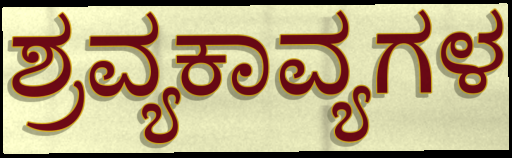
ಶ್ರವ್ಯಕಾವ್ಯಗಳ